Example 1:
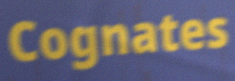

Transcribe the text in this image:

Cognates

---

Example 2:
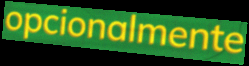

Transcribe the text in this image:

opcionalmente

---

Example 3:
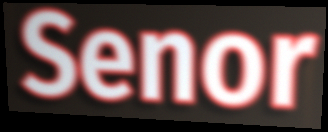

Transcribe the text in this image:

Senor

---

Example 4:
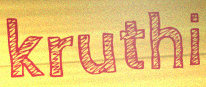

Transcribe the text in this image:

kruthi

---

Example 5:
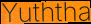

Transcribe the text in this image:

Yuththa